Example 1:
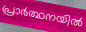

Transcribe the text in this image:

പ്രാർത്ഥനയിൽ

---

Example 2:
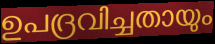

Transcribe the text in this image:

ഉപദ്രവിച്ചതായും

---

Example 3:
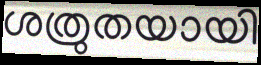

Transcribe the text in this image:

ശത്രുതയായി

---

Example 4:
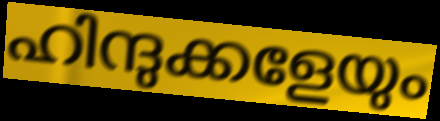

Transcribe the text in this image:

ഹിന്ദുക്കളേയും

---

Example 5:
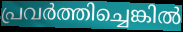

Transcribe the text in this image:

പ്രവർത്തിച്ചെങ്കിൽ